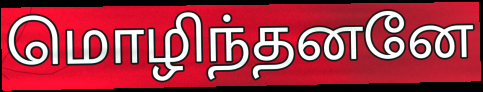
மொழிந்தனனே